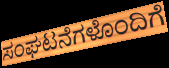
ಸಂಘಟನೆಗಳೊಂದಿಗೆ